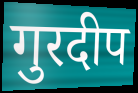
गुरदीप